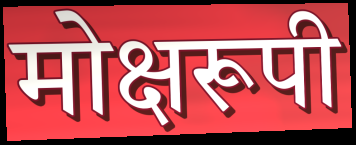
मोक्षरूपी